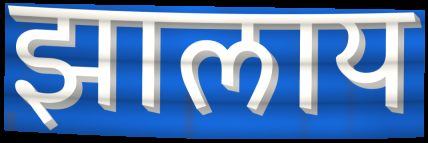
झालाय